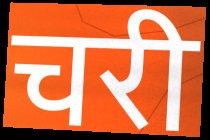
चरी